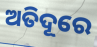
ଅତିଦୂରେ